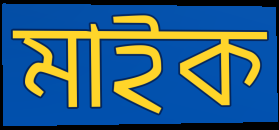
মাইক